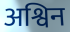
अश्विन